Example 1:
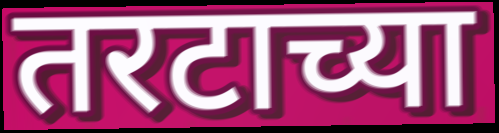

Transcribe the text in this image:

तरटाच्या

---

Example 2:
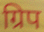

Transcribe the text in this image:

ग्रिप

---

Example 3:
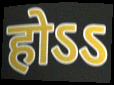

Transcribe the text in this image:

होऽऽ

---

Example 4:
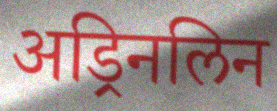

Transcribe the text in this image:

अड्रिनलिन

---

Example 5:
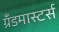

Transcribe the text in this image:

ग्रँडमास्टर्स